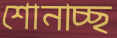
শোনাচ্ছ